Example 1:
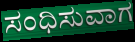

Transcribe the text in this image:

ಸಂಧಿಸುವಾಗ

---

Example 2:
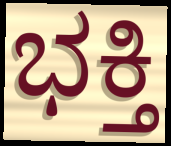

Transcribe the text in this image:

ಭಕ್ತಿ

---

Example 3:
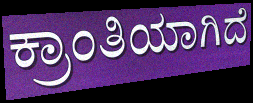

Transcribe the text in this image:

ಕ್ರಾಂತಿಯಾಗಿದೆ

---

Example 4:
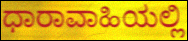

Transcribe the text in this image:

ಧಾರಾವಾಹಿಯಲ್ಲಿ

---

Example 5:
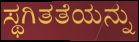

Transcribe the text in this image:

ಸ್ಥಗಿತತೆಯನ್ನು